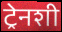
ट्रेनशी